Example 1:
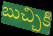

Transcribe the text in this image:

బుచ్చికి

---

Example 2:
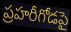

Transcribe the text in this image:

ప్రహరీగోడపై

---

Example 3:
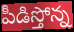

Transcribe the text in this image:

పీడిస్తోన్న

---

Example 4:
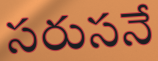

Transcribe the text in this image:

సరుసనే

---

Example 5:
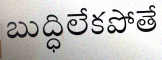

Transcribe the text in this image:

బుద్ధిలేకపోతే